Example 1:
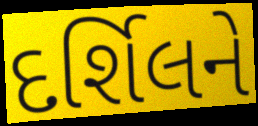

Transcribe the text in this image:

દર્શિલને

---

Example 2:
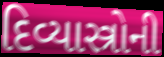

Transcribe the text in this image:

દિવ્યાસ્ત્રોની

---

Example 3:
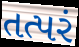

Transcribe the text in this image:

તત્પરં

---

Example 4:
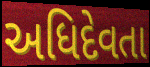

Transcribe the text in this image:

અધિદેવતા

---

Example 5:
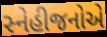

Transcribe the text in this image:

સ્નેહીજનોએ